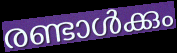
രണ്ടാൾക്കും